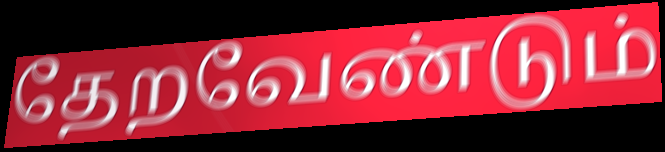
தேறவேண்டும்